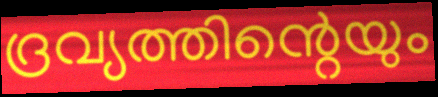
ദ്രവ്യത്തിന്റെയും